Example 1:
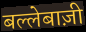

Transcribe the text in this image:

बल्‍लेबाज़ी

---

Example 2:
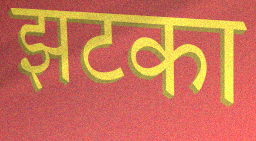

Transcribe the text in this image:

झटका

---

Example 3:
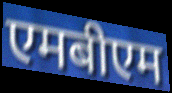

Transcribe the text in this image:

एमबीएम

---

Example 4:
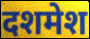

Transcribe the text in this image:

दशमेश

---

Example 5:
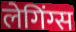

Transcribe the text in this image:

लेगिंग्स